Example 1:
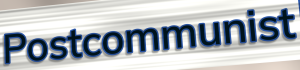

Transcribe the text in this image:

Postcommunist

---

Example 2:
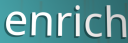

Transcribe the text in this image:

enrich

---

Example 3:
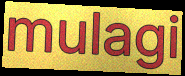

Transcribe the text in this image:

mulagi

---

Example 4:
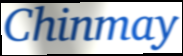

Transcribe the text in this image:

Chinmay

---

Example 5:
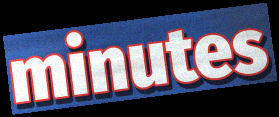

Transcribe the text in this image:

minutes